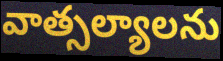
వాత్సల్యాలను